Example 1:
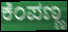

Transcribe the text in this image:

ಕೆಂಪಣ್ಣ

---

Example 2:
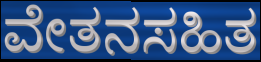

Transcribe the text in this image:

ವೇತನಸಹಿತ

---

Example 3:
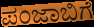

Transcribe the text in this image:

ಪಂಜಾಬಿಗೆ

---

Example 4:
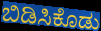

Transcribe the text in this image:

ಬಿಡಿಸಿಕೊಡು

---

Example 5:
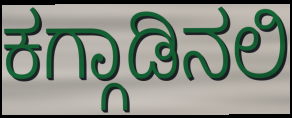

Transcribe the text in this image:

ಕಗ್ಗಾಡಿನಲಿ